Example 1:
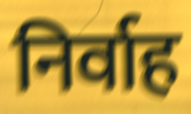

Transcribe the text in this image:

निर्वाह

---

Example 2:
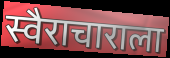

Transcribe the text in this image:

स्वैराचाराला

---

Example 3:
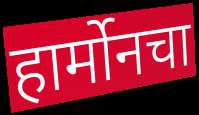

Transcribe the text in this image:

हार्मोनचा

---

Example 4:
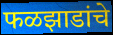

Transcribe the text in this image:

फळझाडांचे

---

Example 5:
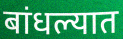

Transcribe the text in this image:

बांधल्यात